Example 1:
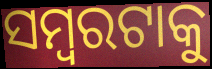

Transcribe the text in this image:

ସମ୍ବରଟାକୁ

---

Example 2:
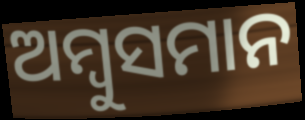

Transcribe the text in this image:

ଅମ୍ବୁସମାନ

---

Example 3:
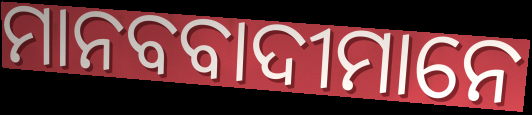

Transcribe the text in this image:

ମାନବବାଦୀମାନେ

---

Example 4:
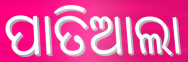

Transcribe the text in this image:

ପାତିଆଲା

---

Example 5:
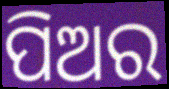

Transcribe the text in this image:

ପିଅର